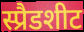
स्प्रैडशीट